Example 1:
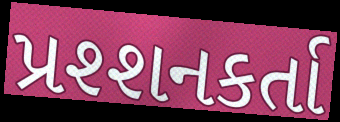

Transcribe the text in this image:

પ્રશ્શનકર્તા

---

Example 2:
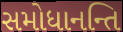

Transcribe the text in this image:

સમોધાનન્તિ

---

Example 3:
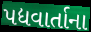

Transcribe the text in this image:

પદ્યવાર્તાના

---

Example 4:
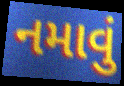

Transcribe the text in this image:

નમાવું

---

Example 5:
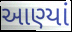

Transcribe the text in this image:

આણ્યાં